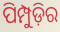
ପିମ୍ପୁଡ଼ିର